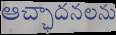
ఆచ్ఛాదనలను